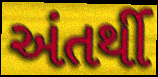
અંતર્થી